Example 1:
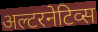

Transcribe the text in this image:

अल्टरनेटिव्स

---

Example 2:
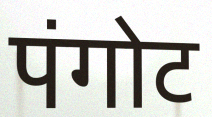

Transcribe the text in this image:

पंगोट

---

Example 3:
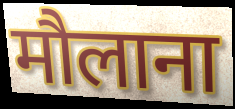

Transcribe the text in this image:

मौलाना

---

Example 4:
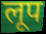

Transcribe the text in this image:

लूप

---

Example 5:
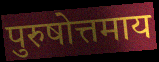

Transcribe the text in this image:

पुरुषोत्तमाय